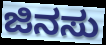
ಜಿನಸು